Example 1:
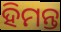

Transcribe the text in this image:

ହିମନ୍ତ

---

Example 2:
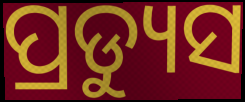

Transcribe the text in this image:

ପ୍ରଡ୍ୟୁସ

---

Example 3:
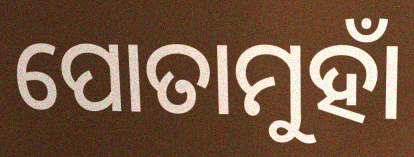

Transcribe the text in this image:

ପୋତାମୁହାଁ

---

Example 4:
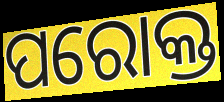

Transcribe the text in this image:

ପରୋକ୍ତ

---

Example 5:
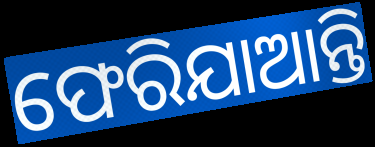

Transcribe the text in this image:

ଫେରିଯାଆନ୍ତି